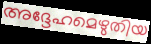
അദ്ദേഹമെഴുതിയ